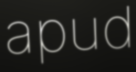
apud